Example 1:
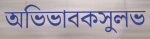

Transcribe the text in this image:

অভিভাবকসুলভ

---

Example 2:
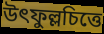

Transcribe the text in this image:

উৎফুল্লচিত্তে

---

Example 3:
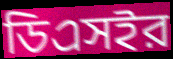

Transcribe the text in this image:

ডিএসইর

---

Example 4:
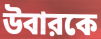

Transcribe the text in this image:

উবারকে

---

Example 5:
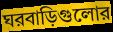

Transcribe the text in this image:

ঘরবাড়িগুলোর